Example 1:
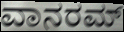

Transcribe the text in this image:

ವಾನರಮ್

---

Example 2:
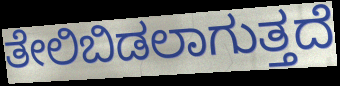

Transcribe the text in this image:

ತೇಲಿಬಿಡಲಾಗುತ್ತದೆ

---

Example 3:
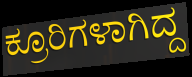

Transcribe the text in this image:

ಕ್ರೂರಿಗಳಾಗಿದ್ದ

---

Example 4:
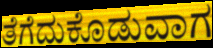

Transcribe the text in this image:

ತೆಗೆದುಕೊಡುವಾಗ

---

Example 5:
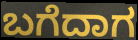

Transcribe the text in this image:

ಬಗೆದಾಗ